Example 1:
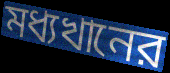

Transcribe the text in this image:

মধ্যখানের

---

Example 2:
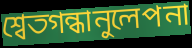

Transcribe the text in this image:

শ্বেতগন্ধানুলেপনা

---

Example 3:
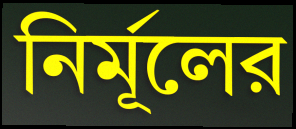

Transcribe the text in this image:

নির্মূলের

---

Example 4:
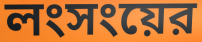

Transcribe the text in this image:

লংসংয়ের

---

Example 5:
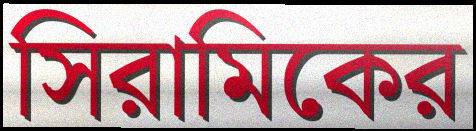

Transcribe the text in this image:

সিরামিকের